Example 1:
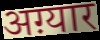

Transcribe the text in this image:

अग़्यार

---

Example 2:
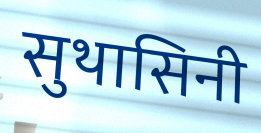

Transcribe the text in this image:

सुथासिनी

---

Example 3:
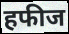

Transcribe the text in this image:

हफीज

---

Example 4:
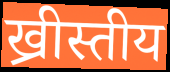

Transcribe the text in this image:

ख्रीस्तीय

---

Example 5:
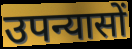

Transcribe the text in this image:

उपन्यासों